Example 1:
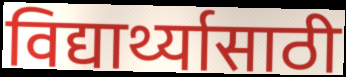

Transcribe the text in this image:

विद्यार्थ्यासाठी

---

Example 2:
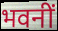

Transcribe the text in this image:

भवनीं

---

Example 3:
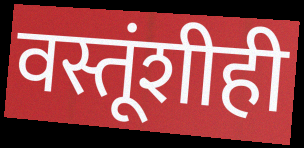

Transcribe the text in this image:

वस्तूंशीही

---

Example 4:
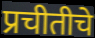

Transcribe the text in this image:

प्रचीतीचे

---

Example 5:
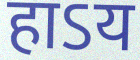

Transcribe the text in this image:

हाऽय